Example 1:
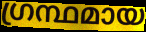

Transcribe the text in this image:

ഗ്രന്ഥമായ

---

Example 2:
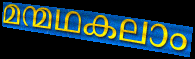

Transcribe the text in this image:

മന്മഥകലാം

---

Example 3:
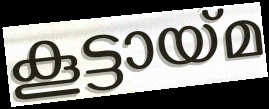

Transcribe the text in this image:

കൂട്ടായ്മ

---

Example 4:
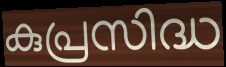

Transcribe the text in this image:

കുപ്രസിദ്ധ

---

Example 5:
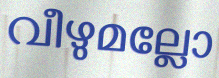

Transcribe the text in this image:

വീഴുമല്ലോ